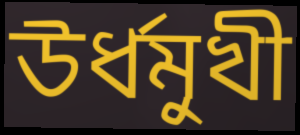
উর্ধমুখী